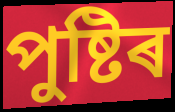
পুষ্টিৰ